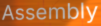
Assembly